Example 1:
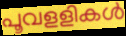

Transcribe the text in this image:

പൂവളളികൾ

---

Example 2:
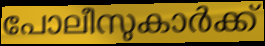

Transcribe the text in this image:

പോലീസുകാർക്ക്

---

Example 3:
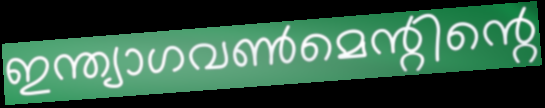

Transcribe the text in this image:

ഇന്ത്യാഗവൺമെന്റിന്റെ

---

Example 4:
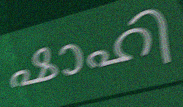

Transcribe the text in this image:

ഷാഹി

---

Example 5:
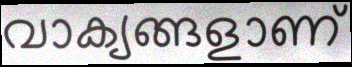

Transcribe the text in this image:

വാക്യങ്ങളാണ്